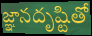
జ్ఞానదృష్టితో